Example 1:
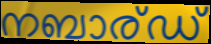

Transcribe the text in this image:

നബാര്ഡ്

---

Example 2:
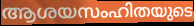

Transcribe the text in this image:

ആശയസംഹിതയുടെ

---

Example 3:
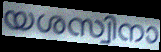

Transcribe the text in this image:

യശസ്വിനാ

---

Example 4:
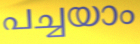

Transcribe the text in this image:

പച്ചയാം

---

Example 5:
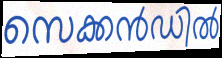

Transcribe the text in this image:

സെക്കൻഡിൽ